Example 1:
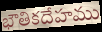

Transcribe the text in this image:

భౌతికదేహము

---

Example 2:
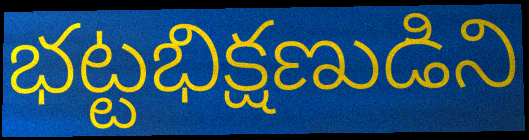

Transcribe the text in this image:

భట్టభిక్షణుడిని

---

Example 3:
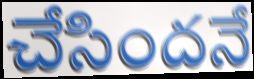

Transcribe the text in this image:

చేసిందనే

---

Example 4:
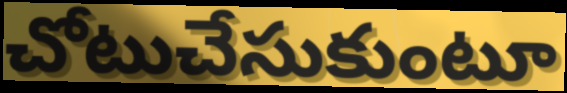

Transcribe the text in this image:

చోటుచేసుకుంటూ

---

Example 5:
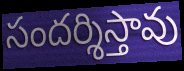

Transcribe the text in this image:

సందర్శిస్తావు